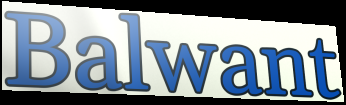
Balwant